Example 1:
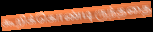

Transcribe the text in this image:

கூறிக்கொண்டிருந்ததை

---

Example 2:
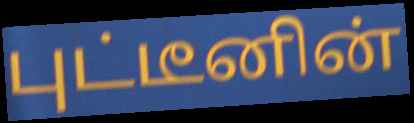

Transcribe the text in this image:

புட்டீனின்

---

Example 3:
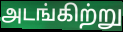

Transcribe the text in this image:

அடங்கிற்று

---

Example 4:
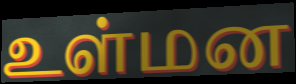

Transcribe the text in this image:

உள்மன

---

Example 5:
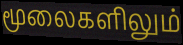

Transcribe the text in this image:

மூலைகளிலும்